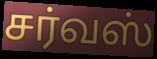
சர்வஸ்